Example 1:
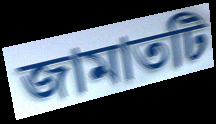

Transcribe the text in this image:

জামাতটি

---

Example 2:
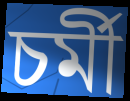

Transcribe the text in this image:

চর্মী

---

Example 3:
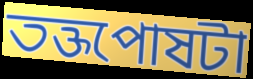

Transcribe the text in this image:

তক্তপোষটা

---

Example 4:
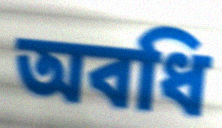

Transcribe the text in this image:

অবধি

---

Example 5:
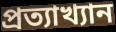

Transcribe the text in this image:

প্রত্যাখ্যান